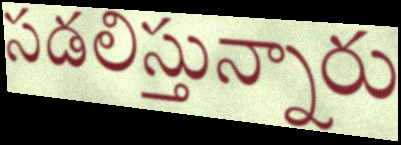
సడలిస్తున్నారు